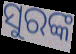
ସୁରଙ୍କ